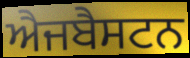
ਐਜਬੈਸਟਨ